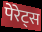
पेरेट्स